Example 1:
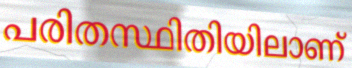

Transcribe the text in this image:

പരിതസ്ഥിതിയിലാണ്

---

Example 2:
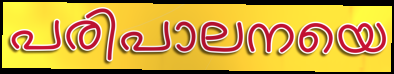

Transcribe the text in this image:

പരിപാലനയെ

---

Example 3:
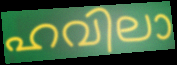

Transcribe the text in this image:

ഹവിലാ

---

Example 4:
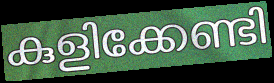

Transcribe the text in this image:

കുളിക്കേണ്ടി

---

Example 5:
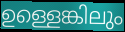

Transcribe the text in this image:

ഉള്ളെങ്കിലും